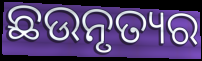
ଛଉନୃତ୍ୟର